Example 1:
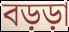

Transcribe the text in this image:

বড়ড়া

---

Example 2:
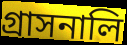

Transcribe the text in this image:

গ্রাসনালি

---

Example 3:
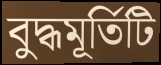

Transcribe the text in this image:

বুদ্ধমূর্তিটি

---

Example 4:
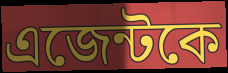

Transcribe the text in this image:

এজেন্টকে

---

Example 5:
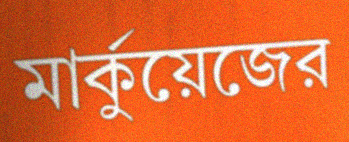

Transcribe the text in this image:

মার্কুয়েজের